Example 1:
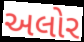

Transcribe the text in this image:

અલોર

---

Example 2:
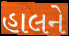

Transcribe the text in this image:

હાલને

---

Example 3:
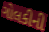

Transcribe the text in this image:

ગોલકીની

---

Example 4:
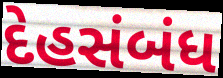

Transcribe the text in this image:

દેહસંબંધ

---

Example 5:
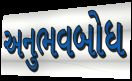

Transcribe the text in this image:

અનુભવબોધ